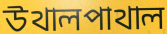
উথালপাথাল